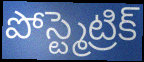
పోస్ట్మెట్రిక్